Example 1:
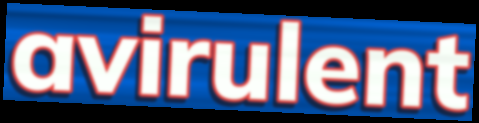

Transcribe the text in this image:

avirulent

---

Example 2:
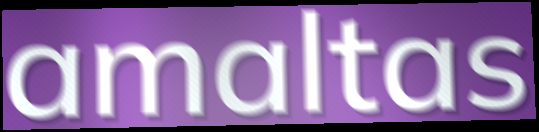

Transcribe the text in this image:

amaltas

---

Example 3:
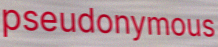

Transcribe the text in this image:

pseudonymous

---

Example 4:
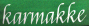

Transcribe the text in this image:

karmakke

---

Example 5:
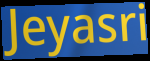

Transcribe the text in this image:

Jeyasri